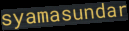
syamasundar